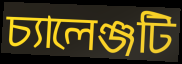
চ্যালেঞ্জটি